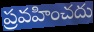
ప్రవహించదు